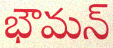
భౌమన్